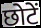
छोटें